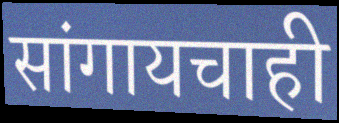
सांगायचाही